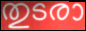
തുടരാ